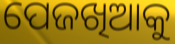
ପେଜଖିଆକୁ